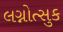
લગ્નોત્સુક